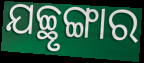
ଯଚ୍ଛୃଙ୍ଗାର